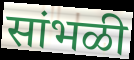
सांभळी